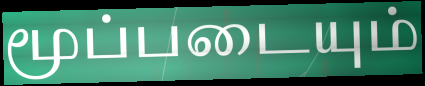
மூப்படையும்